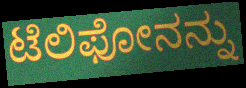
ಟೆಲಿಫೋನನ್ನು